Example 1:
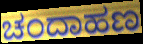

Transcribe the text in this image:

ಚಂದಾಹಣ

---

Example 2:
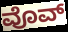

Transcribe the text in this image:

ವೊವ್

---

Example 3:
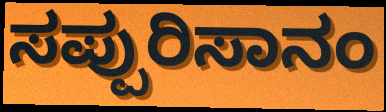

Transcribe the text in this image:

ಸಪ್ಪುರಿಸಾನಂ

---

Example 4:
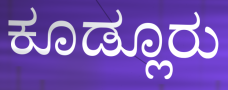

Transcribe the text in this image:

ಕೂಡ್ಲೂರು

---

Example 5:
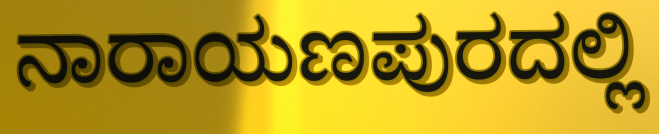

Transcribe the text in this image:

ನಾರಾಯಣಪುರದಲ್ಲಿ